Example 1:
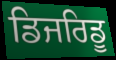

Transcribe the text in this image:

ਡਿਜਰਿਡੂ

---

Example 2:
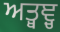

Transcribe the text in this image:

ਅਤ੍ਥਞ੍ਚ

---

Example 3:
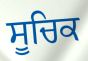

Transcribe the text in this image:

ਸੂਚਿਕ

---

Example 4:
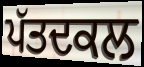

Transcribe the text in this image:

ਪੱਤਦਕਲ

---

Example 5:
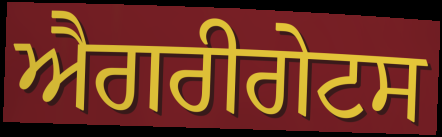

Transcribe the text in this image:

ਐਗਰੀਗੇਟਸ